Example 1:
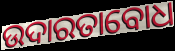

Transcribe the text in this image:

ଉଦାରତାବୋଧ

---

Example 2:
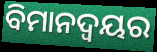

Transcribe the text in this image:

ବିମାନଦ୍ବୟର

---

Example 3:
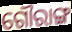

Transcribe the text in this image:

ଗୌରାଙ୍ଗ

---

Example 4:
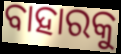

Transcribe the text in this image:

ବାହାରକୁ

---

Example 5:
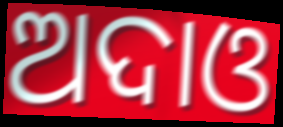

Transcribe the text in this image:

ଅଦାଓ